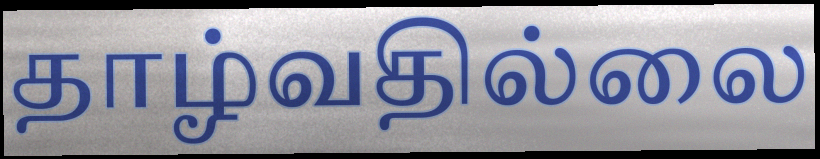
தாழ்வதில்லை